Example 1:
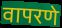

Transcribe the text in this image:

वापरणे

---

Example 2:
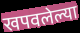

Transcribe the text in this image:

खपवलेल्या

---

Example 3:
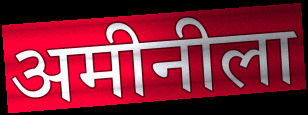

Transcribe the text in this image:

अमीनीला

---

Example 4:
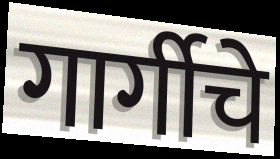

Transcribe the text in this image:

गार्गीचे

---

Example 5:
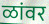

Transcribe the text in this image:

ळांवर